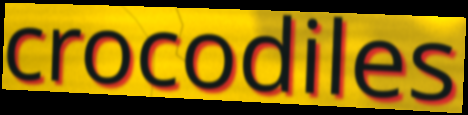
crocodiles